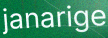
janarige